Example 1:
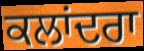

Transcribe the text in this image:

ਕਲਾਂਦਰਾ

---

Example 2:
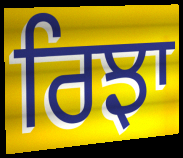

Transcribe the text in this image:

ਰਿਝਾ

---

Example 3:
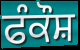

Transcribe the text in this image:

ਫੰਕੌਸ਼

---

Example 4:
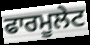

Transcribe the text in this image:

ਫਾਰਮੂਲੇਟ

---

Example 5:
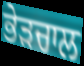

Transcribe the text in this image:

ਭੇੜਚਾਲ